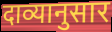
दाव्यानुसार